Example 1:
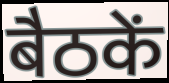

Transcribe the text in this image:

बैठकें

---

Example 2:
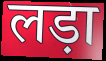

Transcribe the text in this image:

लड़ा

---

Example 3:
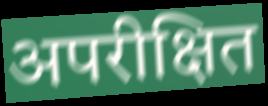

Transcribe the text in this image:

अपरीक्षित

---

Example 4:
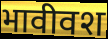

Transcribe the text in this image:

भावीवश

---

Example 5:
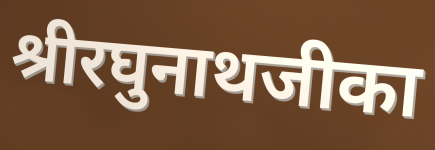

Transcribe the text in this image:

श्रीरघुनाथजीका